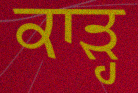
ਕਾੜ੍ਹ